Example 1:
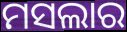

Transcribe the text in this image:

ମସଲାର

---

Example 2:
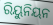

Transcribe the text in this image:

ରିୟୁନିୟନ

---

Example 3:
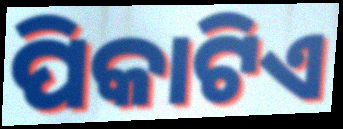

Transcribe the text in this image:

ପିକାଟିଏ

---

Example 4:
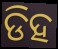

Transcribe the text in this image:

ଡିହ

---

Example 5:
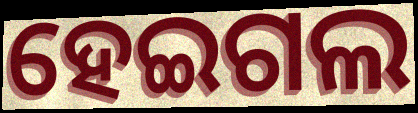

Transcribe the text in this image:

ହେଇଗଲ